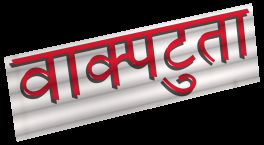
वाक्पटुता